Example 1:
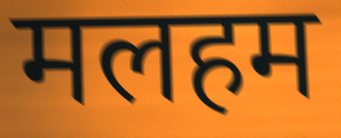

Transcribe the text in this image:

मलहम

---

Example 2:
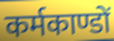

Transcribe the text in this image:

कर्मकाण्डों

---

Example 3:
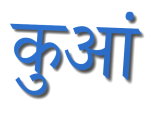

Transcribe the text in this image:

कुआं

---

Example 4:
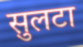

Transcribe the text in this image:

सुलटा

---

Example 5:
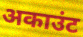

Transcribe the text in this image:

अकाउंट